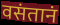
वसंतानं